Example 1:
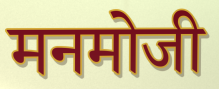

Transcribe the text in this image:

मनमोजी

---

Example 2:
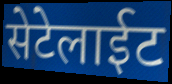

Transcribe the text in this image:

सेटेलाईट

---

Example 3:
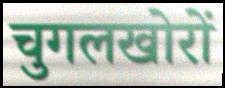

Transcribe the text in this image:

चुगलखोरों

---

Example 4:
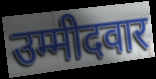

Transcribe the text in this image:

उम्मीदवार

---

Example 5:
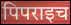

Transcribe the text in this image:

पिपराइच